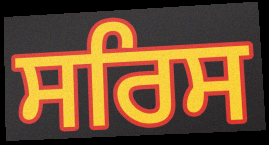
ਸਰਿਸ